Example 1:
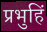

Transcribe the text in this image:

प्रभुहिं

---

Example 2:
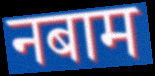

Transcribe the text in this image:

नबाम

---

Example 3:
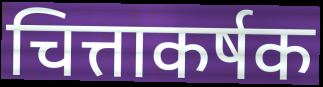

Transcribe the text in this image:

चित्ताकर्षक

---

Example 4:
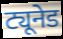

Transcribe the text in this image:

ट्यूनेड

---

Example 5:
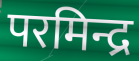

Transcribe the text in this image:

परमिन्द्र